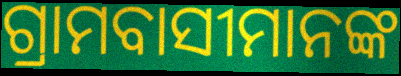
ଗ୍ରାମବାସୀମାନଙ୍କ